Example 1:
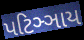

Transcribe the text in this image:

પટિઞ્ઞાય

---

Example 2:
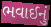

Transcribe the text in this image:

ભવાઈનું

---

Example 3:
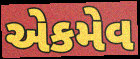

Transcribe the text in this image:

એકમેવ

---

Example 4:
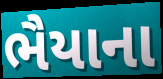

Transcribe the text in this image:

ભૈયાના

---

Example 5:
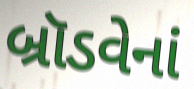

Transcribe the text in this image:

બ્રૉડવેનાં